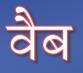
वैब